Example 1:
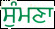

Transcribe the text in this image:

ਸੁੰਮਣਾ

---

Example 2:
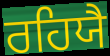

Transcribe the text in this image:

ਰਹਿਯੈ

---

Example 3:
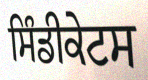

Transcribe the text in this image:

ਸਿੰਡੀਕੇਟਸ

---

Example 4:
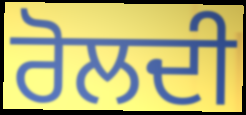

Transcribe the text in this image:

ਰੋਲਦੀ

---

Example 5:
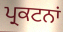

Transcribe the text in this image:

ਪ੍ਰਕਟਨਾਂ